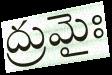
ద్రుమైః